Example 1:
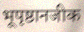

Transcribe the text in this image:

भूपृष्ठानजीक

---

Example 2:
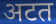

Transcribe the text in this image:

अटत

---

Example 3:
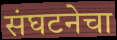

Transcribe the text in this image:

संघटनेचा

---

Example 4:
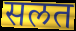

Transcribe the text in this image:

सलत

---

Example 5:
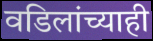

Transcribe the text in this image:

वडिलांच्याही